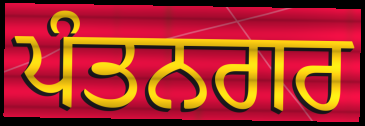
ਪੰਤਨਗਰ